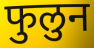
फुलुन